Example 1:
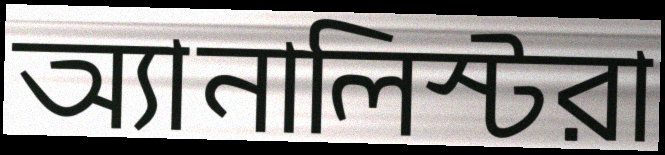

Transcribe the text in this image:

অ্যানালিস্টরা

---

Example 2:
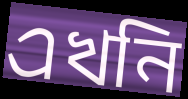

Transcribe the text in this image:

এখনি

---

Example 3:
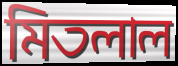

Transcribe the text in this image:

মিতলাল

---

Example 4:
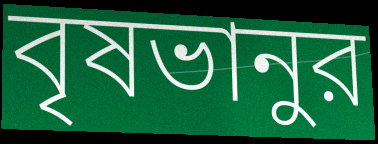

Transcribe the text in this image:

বৃষভানুর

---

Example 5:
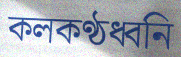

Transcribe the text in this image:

কলকণ্ঠধ্বনি